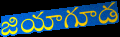
జియాగూడ